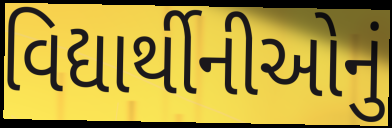
વિદ્યાર્થીનીઓનું